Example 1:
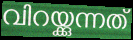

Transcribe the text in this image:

വിറയ്ക്കുന്നത്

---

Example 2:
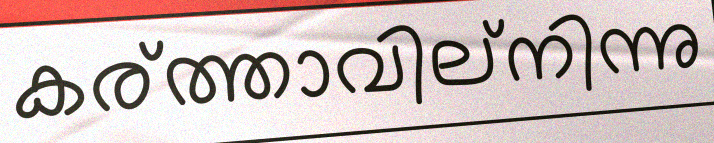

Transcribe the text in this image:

കര്ത്താവില്നിന്നു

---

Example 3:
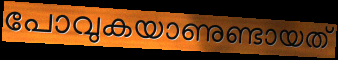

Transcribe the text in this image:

പോവുകയാണുണ്ടായത്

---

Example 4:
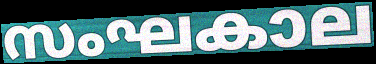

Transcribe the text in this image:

സംഘകാല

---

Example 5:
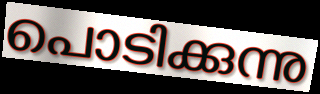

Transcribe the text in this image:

പൊടിക്കുന്നു